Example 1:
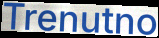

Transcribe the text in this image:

Trenutno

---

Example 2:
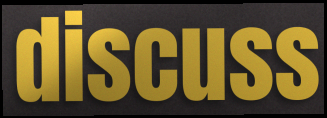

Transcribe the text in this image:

discuss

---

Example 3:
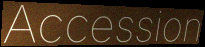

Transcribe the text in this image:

Accession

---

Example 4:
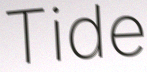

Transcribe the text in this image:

Tide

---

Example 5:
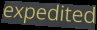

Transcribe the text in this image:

expedited